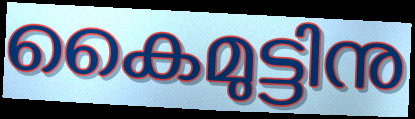
കൈമുട്ടിനു